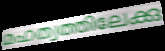
മഹത്വത്തിലേക്കു